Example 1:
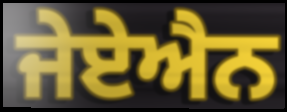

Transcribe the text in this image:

ਜੇਏਐਨ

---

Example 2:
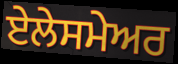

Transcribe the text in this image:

ਏਲੇਸਮੇਅਰ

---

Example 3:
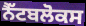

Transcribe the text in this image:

ਨੈੱਟਬਲੋਕਸ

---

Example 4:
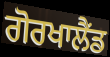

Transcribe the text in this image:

ਗੋਰਖਾਲੈਂਡ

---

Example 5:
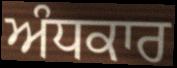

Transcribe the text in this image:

ਅੰਧਕਾਰ